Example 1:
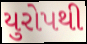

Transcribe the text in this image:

યુરોપથી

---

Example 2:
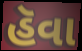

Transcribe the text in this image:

હૅવા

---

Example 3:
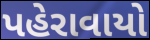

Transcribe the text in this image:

પહેરાવાયો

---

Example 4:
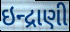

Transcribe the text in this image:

ઇન્દ્રાણી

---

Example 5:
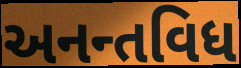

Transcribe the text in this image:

અનન્તવિધ